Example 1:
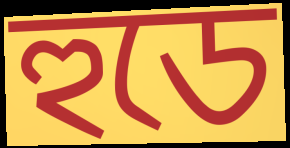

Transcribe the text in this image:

হুডে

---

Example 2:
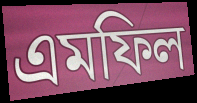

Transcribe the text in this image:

এমফিল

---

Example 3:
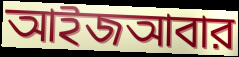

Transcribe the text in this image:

আইজআবার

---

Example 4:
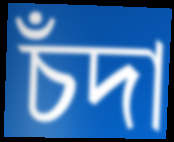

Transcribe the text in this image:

চঁদা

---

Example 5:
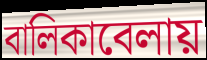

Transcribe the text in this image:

বালিকাবেলায়